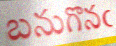
బనుగొనఁ